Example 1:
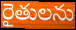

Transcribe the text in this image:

రైతులను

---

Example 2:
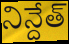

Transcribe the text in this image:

నిన్దేత్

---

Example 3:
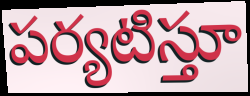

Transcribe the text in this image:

పర్యటిస్తూ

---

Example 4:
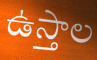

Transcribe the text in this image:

ఉస్తాల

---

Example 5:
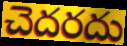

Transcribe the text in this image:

చెదరదు